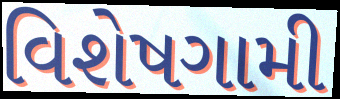
વિશેષગામી